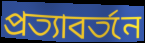
প্রত্যাবর্তনে